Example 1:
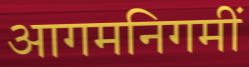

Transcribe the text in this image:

आगमनिगमीं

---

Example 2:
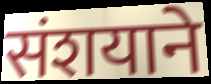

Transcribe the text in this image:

संशयाने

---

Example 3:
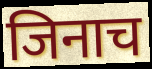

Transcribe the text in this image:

जिनाच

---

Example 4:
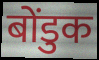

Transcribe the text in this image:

बोंडुक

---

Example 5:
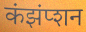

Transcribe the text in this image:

कंझंप्शन